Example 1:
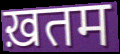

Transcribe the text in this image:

ख़तम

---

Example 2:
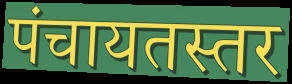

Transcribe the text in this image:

पंचायतस्तर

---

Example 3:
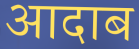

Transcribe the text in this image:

आदाब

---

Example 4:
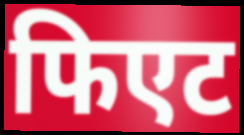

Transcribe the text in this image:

फिएट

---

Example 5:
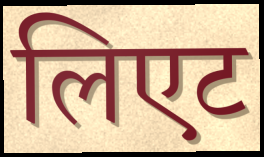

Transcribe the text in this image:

लिएट